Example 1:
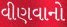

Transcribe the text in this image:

વીણવાનો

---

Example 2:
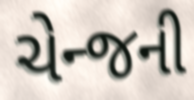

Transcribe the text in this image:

ચેન્જની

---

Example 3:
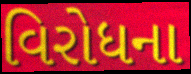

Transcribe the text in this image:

વિરોધના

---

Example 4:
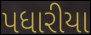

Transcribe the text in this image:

પધારીયા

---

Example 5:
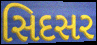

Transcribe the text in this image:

સિદસર